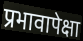
प्रभावापेक्षा